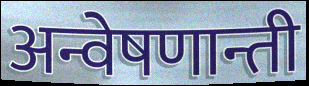
अन्वेषणान्ती